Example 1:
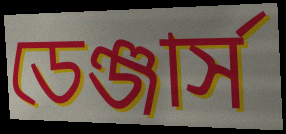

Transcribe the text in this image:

ডেঞ্জার্স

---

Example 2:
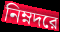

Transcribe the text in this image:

নিম্নদরে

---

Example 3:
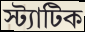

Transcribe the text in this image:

স্ট্যাটিক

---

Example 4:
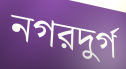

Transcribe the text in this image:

নগরদুর্গ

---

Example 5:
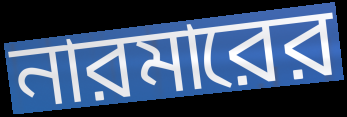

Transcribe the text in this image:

নারমারের